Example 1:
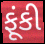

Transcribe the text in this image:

ફૂંકી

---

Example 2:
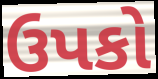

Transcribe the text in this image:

ઉપકો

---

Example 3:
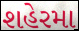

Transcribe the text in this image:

શહેરમા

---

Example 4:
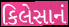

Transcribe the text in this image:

કિલેસાનં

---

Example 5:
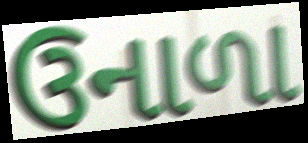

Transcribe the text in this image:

ઉનાળા